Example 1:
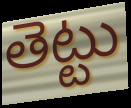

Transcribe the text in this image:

తెట్టు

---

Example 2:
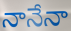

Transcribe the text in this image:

నానేనా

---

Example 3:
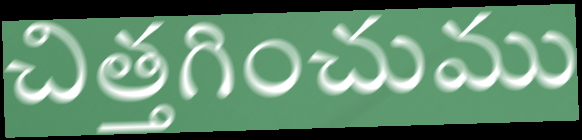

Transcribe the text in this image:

చిత్తగించుము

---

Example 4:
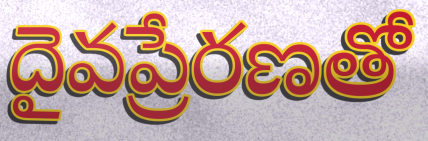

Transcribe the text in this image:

దైవప్రేరణతో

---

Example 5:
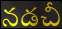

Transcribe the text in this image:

నడచీ